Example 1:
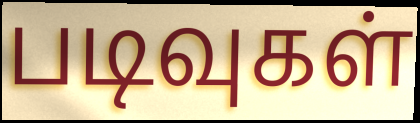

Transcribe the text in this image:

படிவுகள்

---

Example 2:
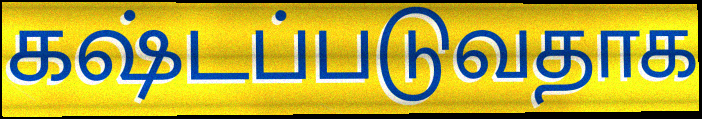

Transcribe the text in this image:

கஷ்டப்படுவதாக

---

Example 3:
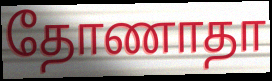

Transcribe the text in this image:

தோணாதா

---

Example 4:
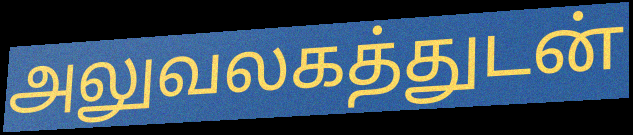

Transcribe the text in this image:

அலுவலகத்துடன்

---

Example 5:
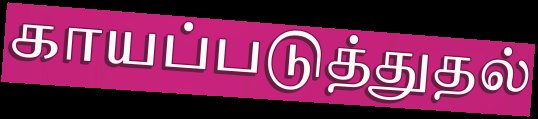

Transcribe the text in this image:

காயப்படுத்துதல்